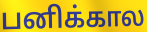
பனிக்கால